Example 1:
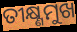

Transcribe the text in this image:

ତୀକ୍ଷ୍ଣମୁଖ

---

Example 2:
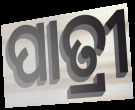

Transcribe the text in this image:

ପାତ୍ରୀ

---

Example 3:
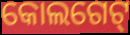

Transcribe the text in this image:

କୋଲଗେଟ୍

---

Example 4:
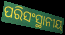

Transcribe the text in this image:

ପରିସଂସ୍ଥାନୀୟ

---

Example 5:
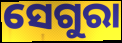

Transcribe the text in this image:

ସେଗୁରା